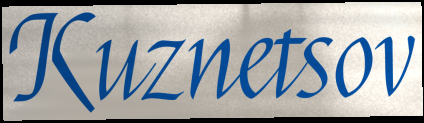
Kuznetsov